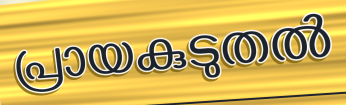
പ്രായകുടുതൽ